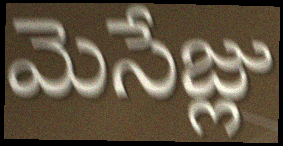
మెసేజ్లు